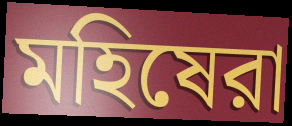
মহিষেরা